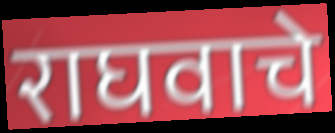
राघवाचे